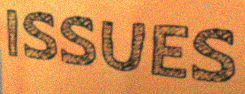
ISSUES